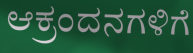
ಆಕ್ರಂದನಗಳಿಗೆ